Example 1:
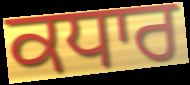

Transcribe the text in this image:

ਕਧਾਰ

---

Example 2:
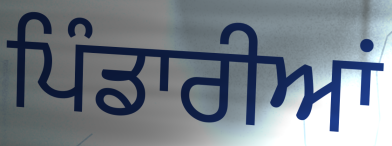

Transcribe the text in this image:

ਪਿੰਡਾਰੀਆਂ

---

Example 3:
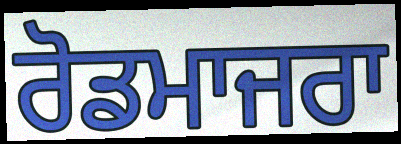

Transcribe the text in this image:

ਰੋਡਮਾਜਰਾ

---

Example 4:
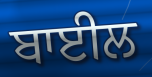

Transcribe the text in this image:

ਬਾਈਲ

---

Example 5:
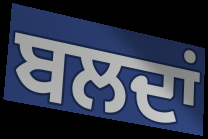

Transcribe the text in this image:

ਬਲਦਾਂ